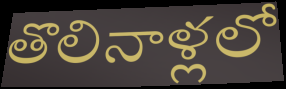
తొలినాళ్లలో